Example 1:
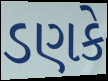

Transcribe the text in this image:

ડણકે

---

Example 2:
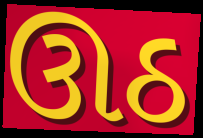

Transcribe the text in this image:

ઊઠ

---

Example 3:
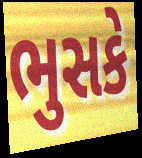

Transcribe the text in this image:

ભુસકે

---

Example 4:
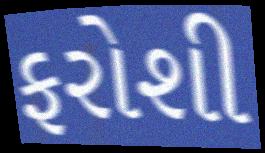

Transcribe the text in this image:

ફરોશી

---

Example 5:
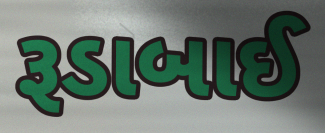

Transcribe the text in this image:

રૂડાબાઈ